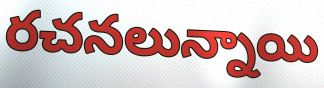
రచనలున్నాయి